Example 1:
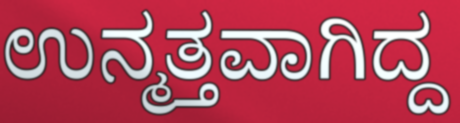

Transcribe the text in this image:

ಉನ್ಮತ್ತವಾಗಿದ್ದ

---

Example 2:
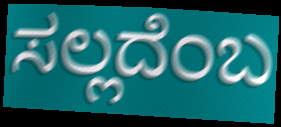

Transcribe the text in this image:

ಸಲ್ಲದೆಂಬ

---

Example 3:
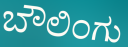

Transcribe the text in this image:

ಬೌಲಿಂಗು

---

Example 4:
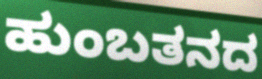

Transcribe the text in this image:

ಹುಂಬತನದ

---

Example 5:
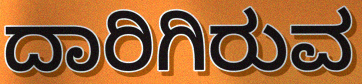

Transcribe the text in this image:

ದಾರಿಗಿರುವ